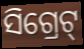
ସିଗ୍ରେଟ୍